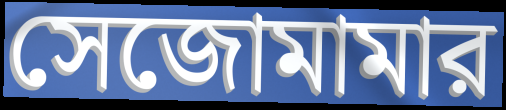
সেজোমামার